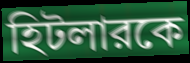
হিটলারকে